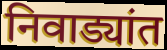
निवाड्यांत